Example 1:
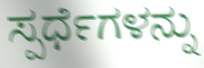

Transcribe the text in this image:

ಸ್ಪರ್ಧೆಗಳನ್ನು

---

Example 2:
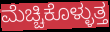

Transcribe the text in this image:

ಮೆಚ್ಚಿಕೊಳ್ಳುತ್ತ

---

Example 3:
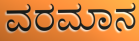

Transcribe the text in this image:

ವರಮಾನ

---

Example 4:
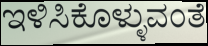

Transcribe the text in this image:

ಇಳಿಸಿಕೊಳ್ಳುವಂತೆ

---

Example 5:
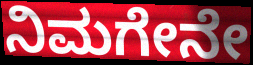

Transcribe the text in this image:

ನಿಮಗೇನೇ